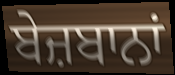
ਬੇਜ਼ਬਾਨਾਂ